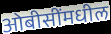
ओबीसींमधील